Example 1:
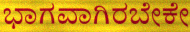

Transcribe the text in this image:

ಭಾಗವಾಗಿರಬೇಕೇ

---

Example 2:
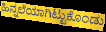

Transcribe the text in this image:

ಹಿನ್ನಲೆಯಾಗಿಟ್ಟುಕೊಂಡು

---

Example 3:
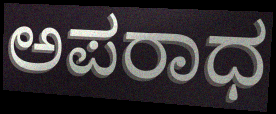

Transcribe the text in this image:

ಅಪರಾಧ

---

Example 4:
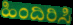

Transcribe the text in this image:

ಹಿಂದಿರಿಸಿ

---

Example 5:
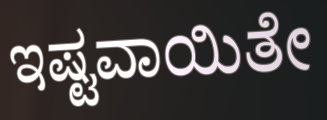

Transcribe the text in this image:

ಇಷ್ಟವಾಯಿತೇ